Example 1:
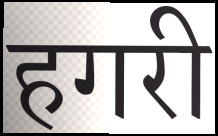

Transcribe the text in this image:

हगरी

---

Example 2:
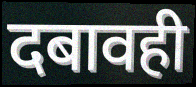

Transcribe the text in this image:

दबावही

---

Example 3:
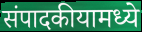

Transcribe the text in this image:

संपादकीयामध्ये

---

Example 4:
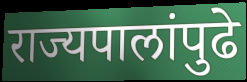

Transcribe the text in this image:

राज्यपालांपुढे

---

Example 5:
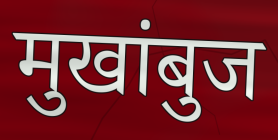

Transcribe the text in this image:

मुखांबुज